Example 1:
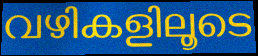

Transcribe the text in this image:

വഴികളിലൂടെ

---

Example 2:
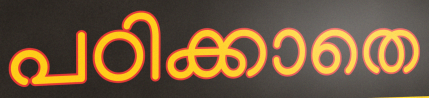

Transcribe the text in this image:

പഠിക്കാതെ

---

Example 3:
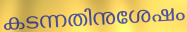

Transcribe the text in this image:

കടന്നതിനുശേഷം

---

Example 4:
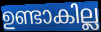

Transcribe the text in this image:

ഉണ്ടാകില്ല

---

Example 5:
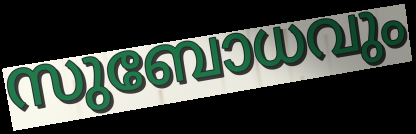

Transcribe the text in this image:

സുബോധവും